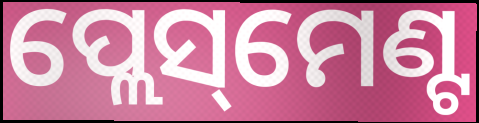
ପ୍ଲେସ୍‌ମେଣ୍ଟ